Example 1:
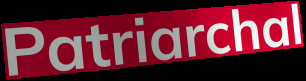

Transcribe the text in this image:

Patriarchal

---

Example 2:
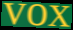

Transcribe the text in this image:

vox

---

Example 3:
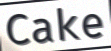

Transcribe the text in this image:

Cake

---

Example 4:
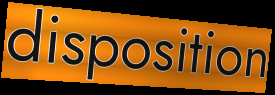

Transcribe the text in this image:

disposition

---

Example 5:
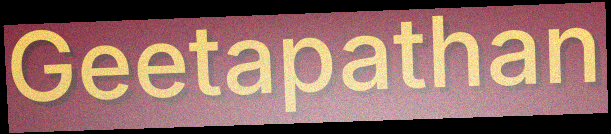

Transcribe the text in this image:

Geetapathan